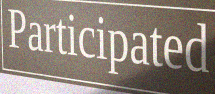
Participated